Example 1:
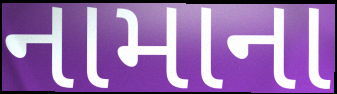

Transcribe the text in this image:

નામાના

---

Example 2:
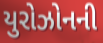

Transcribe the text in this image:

યુરોઝોનની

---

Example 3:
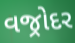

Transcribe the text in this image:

વજ્રોદર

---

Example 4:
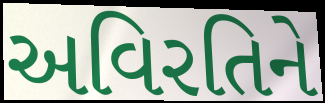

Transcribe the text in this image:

અવિરતિને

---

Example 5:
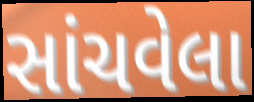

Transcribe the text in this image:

સાંચવેલા